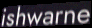
ishwarne